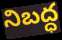
నిబద్ధ